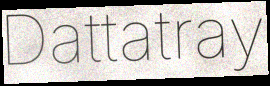
Dattatray